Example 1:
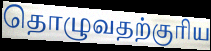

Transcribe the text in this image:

தொழுவதற்குரிய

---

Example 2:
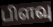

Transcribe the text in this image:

பிளவு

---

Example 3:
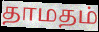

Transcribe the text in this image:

தாமதம்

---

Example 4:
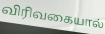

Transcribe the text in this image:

விரிவகையால்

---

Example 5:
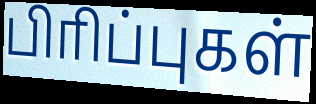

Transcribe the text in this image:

பிரிப்புகள்